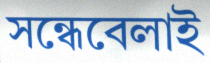
সন্ধেবেলাই